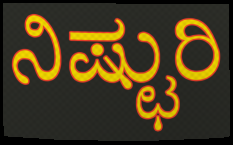
ನಿಷ್ಟುರಿ